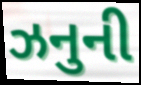
ઝનુની